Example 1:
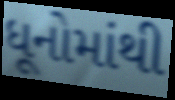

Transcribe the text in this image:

ધૂનોમાંથી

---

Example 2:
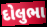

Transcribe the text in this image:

દોલુભા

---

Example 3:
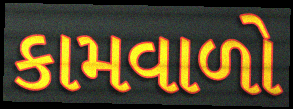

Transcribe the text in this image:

કામવાળો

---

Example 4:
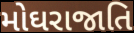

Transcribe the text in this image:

મોઘરાજાતિ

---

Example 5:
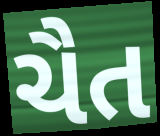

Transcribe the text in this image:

ચૈત